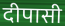
दीपासी